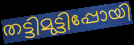
തട്ടിമുട്ടിപ്പോയി